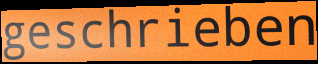
geschrieben